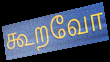
கூறவோ